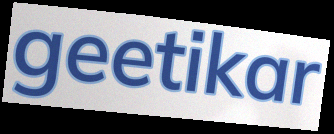
geetikar